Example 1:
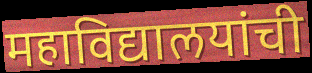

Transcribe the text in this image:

महाविद्यालयांची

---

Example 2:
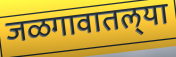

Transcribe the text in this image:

जळगावातल्या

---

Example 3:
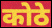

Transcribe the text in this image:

कोठे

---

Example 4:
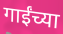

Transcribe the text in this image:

गाईंच्या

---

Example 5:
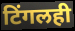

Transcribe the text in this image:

टिंगलही